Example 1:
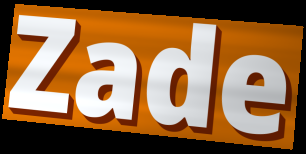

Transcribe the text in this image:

Zade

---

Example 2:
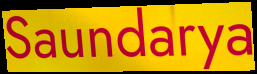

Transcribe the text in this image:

Saundarya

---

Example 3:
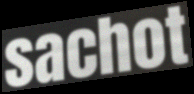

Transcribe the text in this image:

sachot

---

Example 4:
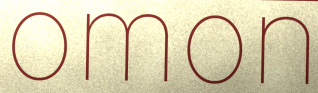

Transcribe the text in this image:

omon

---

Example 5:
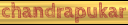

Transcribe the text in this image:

chandrapukar